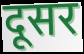
दूसर